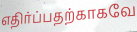
எதிர்ப்பதற்காகவே